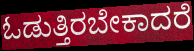
ಓಡುತ್ತಿರಬೇಕಾದರೆ